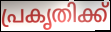
പ്രകൃതിക്ക്